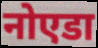
नोएडा